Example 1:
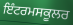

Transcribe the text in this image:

ਇੰਟਰਮਸਕੂਲਰ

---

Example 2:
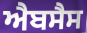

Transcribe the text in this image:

ਐਬਸੈਸ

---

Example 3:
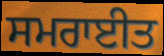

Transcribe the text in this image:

ਸਮਰਾਈਤ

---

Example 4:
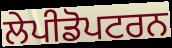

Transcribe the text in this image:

ਲੇਪੀਡੋਪਟਰਨ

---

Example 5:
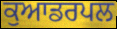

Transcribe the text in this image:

ਕੁਆਡਰਪਲ